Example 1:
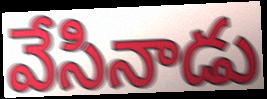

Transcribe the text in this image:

వేసినాడు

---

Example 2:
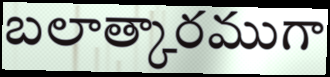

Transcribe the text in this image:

బలాత్కారముగా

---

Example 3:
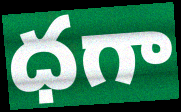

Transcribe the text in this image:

ధగా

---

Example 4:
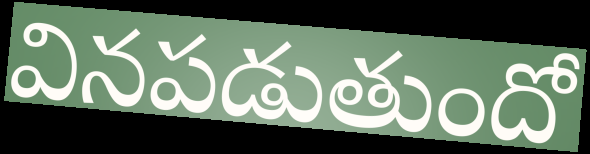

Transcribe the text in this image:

వినపడుతుందో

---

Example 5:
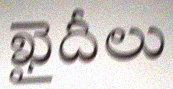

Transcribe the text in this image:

ఖైదీలు